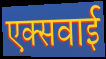
एक्सवाई